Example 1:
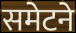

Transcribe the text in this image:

समेटने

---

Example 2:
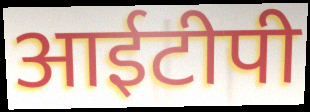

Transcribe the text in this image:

आईटीपी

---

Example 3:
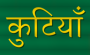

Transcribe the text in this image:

कुटियाँ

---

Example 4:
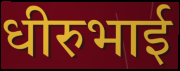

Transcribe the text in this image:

धीरुभाई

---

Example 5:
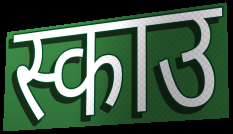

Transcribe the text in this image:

स्काउ